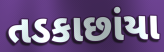
તડકાછાંયા